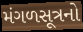
મંગળસૂત્રનો